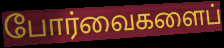
போர்வைகளைப்